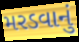
મરડવાનું